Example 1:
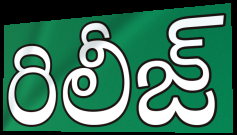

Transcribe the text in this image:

రిలీజ్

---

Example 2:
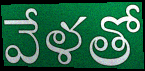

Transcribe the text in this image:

వేళతో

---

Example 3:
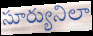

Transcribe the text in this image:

సూర్యునిలా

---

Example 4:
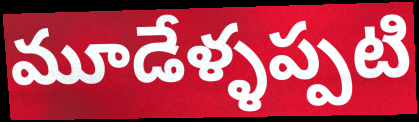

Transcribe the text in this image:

మూడేళ్ళప్పటి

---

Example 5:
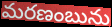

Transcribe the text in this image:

మరణంబును